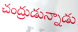
చంద్రుడున్నాడు